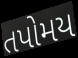
તપોમય